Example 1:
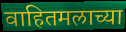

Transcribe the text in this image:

वाहितमलाच्या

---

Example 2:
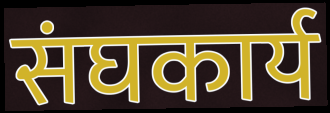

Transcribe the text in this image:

संघकार्य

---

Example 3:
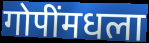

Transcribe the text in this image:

गोपींमधला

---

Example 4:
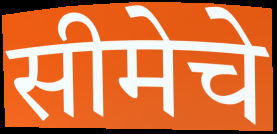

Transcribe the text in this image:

सीमेचे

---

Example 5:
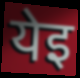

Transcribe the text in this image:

येइ